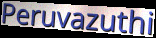
Peruvazuthi